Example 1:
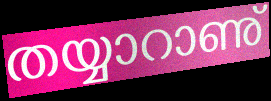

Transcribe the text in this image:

തയ്യാറാണു്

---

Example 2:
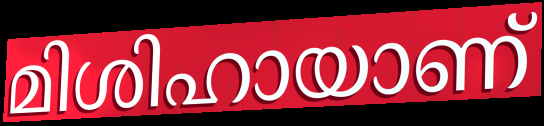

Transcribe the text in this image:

മിശിഹായാണ്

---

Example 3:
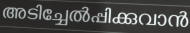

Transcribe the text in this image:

അടിച്ചേൽപ്പിക്കുവാൻ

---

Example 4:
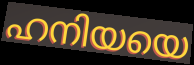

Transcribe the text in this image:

ഹനിയയെ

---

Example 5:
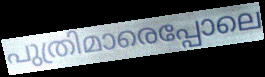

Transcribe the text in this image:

പുത്രിമാരെപ്പോലെ